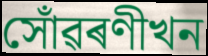
সোঁৱৰণীখন